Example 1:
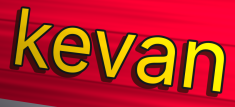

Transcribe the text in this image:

kevan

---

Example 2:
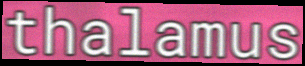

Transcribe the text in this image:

thalamus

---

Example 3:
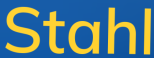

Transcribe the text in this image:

Stahl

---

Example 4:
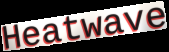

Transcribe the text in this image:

Heatwave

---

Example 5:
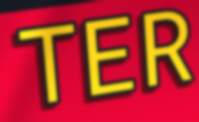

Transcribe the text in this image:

TER